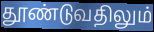
தூண்டுவதிலும்